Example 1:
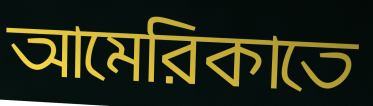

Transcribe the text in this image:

আমেরিকাতে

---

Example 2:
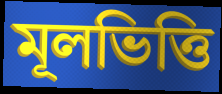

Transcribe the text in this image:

মূলভিত্তি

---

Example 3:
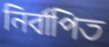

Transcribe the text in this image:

নির্বাপিত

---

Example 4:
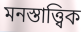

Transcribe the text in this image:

মনস্তাত্ত্বিক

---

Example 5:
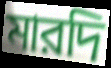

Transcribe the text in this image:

মারদি